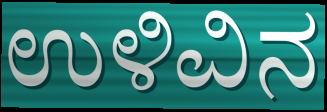
ಉಳಿವಿನ